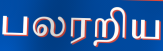
பலரறிய